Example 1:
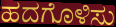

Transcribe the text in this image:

ಹದಗೊಳಿಸು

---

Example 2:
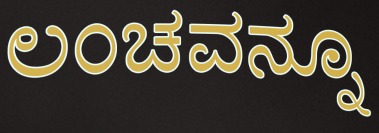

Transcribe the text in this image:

ಲಂಚವನ್ನೂ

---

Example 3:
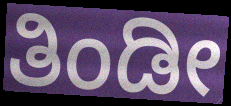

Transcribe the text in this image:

ತಿಂಡೀ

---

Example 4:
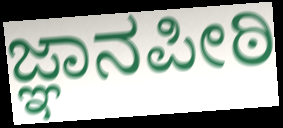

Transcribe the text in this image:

ಜ್ಞಾನಪೀಠಿ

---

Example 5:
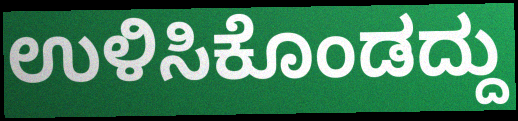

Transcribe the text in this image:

ಉಳಿಸಿಕೊಂಡದ್ದು